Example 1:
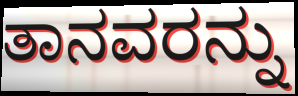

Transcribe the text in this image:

ತಾನವರನ್ನು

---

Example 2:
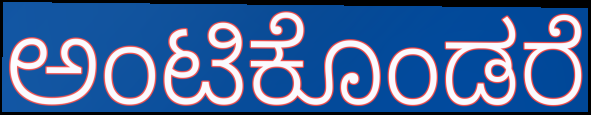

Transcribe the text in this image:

ಅಂಟಿಕೊಂಡರೆ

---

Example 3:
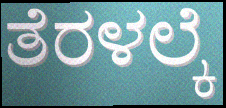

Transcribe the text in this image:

ತೆರಳಲ್ಕೆ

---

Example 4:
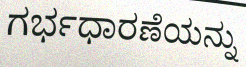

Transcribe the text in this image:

ಗರ್ಭಧಾರಣೆಯನ್ನು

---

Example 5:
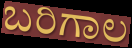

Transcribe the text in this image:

ಬರಿಗಾಲ